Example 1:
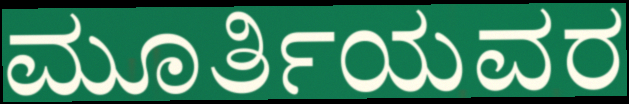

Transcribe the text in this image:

ಮೂರ್ತಿಯವರ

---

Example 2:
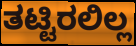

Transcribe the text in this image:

ತಟ್ಟಿರಲಿಲ್ಲ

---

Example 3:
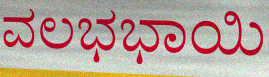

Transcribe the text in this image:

ವಲಭಭಾಯಿ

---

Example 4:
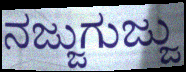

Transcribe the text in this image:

ನಜ್ಜುಗುಜ್ಜು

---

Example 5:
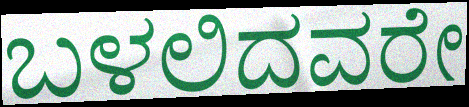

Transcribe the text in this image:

ಬಳಲಿದವರೇ